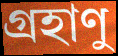
গ্রহাণু